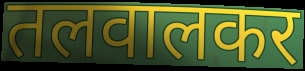
तलवालकर